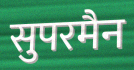
सुपरमैन